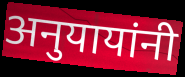
अनुयायांनी